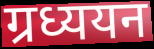
ग्रध्ययन